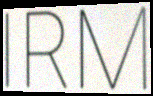
IRM